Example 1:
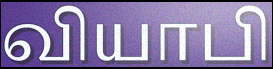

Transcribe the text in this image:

வியாபி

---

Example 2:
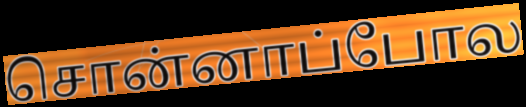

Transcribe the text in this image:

சொன்னாப்போல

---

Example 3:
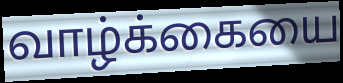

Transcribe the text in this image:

வாழ்க்கையை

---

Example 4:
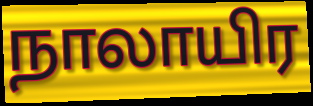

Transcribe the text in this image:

நாலாயிர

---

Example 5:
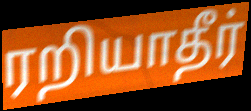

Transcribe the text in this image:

ரறியாதீர்